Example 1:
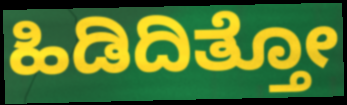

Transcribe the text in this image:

ಹಿಡಿದಿತ್ತೋ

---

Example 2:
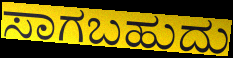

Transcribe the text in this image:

ಸಾಗಬಹುದು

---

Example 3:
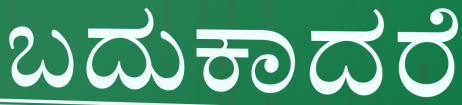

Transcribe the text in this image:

ಬದುಕಾದರೆ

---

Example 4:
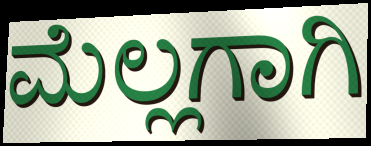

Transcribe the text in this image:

ಮೆಲ್ಲಗಾಗಿ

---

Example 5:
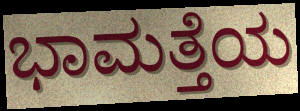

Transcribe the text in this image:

ಭಾಮತ್ತೆಯ